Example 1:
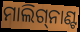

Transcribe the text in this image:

ମାଲିଗ୍‌ନାଣ୍ଟ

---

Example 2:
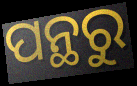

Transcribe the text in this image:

ପନ୍ଥରୁ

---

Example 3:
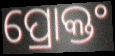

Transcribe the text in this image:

ପ୍ରୋକ୍ତଂ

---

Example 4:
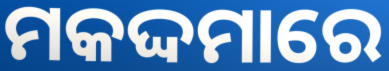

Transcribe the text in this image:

ମକଦ୍ଦମାରେ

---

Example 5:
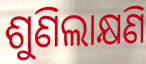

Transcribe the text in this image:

ଶୁଣିଲାକ୍ଷଣି